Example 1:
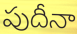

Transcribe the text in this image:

పుదీనా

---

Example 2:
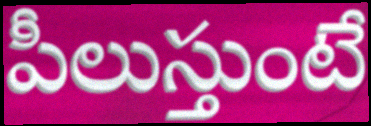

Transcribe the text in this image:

పీలుస్తుంటే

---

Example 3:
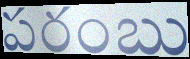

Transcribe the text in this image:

పరంబు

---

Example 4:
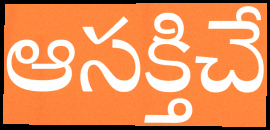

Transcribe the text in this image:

ఆసక్తిచే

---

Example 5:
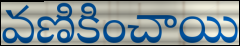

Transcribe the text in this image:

వణికించాయి